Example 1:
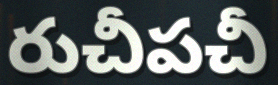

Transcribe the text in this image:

రుచీపచీ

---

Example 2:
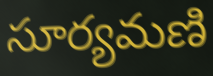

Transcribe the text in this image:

సూర్యమణి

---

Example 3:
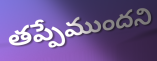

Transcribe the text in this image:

తప్పేముందని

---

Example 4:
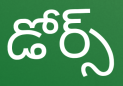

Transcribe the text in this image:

డోర్స్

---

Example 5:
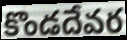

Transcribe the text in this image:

కొండదేవర